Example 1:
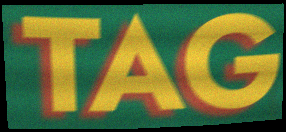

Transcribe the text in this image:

TAG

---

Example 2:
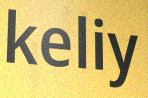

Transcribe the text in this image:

keliy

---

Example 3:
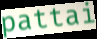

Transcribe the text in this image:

pattai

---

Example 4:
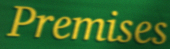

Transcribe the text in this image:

Premises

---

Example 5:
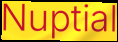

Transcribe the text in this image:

Nuptial